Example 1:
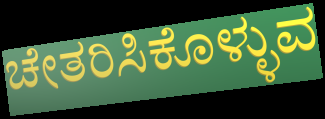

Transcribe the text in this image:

ಚೇತರಿಸಿಕೊಳ್ಳುವ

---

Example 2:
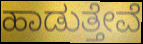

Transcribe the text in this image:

ಹಾಡುತ್ತೇವೆ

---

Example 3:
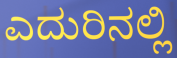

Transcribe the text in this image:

ಎದುರಿನಲ್ಲಿ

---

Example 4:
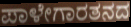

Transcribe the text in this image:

ಪಾಳೇಗಾರತನದ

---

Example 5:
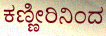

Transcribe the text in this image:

ಕಣ್ಣೀರಿನಿಂದ